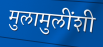
मुलामुलींशी